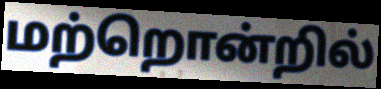
மற்றொன்றில்